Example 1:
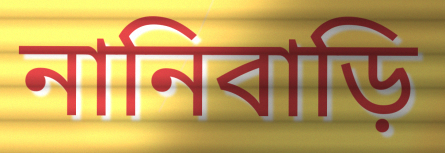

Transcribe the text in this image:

নানিবাড়ি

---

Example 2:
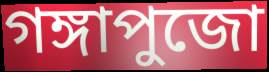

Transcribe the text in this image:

গঙ্গাপুজো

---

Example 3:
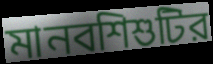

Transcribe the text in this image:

মানবশিশুটির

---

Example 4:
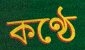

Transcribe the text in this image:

কণ্ঠে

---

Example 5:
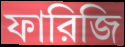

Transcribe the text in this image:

ফারিজি